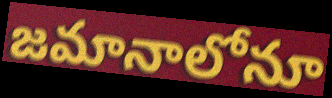
జమానాలోనూ